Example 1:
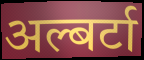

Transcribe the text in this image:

अल्बर्टा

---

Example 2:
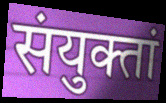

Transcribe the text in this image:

संयुक्तां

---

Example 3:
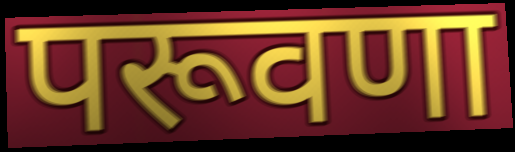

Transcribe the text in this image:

परूवणा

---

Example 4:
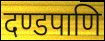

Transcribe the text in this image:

दण्डपाणि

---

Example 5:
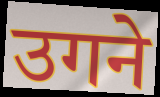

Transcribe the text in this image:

उगने